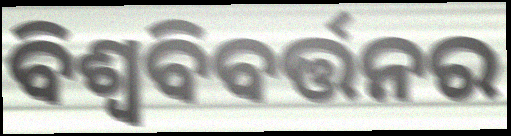
ବିଶ୍ଵବିବର୍ତ୍ତନର